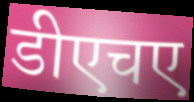
डीएचए